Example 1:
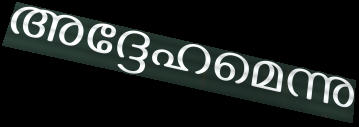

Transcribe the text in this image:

അദ്ദേഹമെന്നു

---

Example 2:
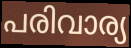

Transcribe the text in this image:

പരിവാര്യ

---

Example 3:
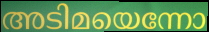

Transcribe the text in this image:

അടിമയെന്നോ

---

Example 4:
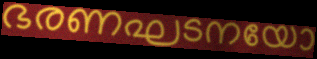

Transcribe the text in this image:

ഭരണഘടനയോ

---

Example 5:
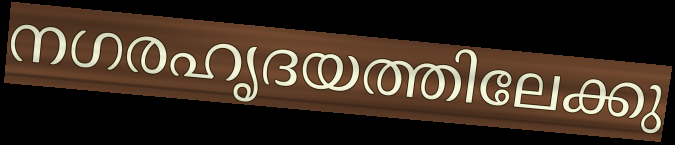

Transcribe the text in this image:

നഗരഹൃദയത്തിലേക്കു